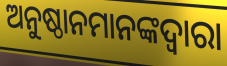
ଅନୁଷ୍ଠାନମାନଙ୍କଦ୍ଵାରା